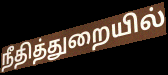
நீதித்துறையில்